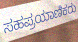
ಸಹಪ್ರಯಾಣಿಕರು